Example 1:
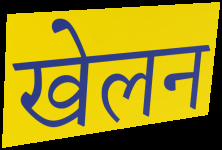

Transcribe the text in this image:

खेलन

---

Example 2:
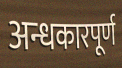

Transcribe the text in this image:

अन्धकारपूर्ण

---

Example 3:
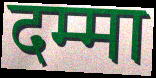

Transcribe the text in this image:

दम्मा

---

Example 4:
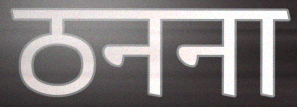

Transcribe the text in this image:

ठनना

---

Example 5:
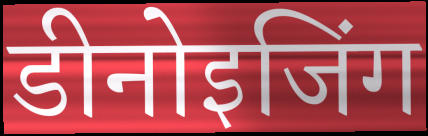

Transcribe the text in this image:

डीनोइजिंग